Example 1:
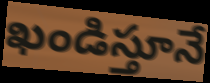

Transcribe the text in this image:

ఖండిస్తూనే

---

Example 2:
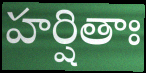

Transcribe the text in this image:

హర్షితాః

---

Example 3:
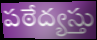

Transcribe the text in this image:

పఠేద్యస్తు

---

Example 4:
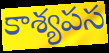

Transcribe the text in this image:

కాశ్యపస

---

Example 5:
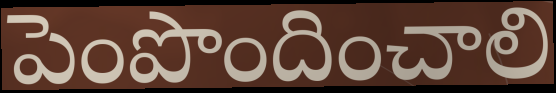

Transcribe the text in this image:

పెంపొందించాలి